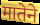
मातेने